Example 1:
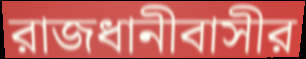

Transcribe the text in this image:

রাজধানীবাসীর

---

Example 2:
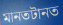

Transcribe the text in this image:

মানতটানত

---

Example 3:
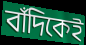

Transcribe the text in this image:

বাঁদিকেই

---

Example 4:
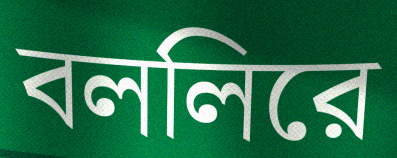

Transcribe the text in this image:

বললিরে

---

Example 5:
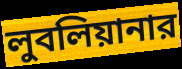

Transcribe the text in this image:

লুবলিয়ানার